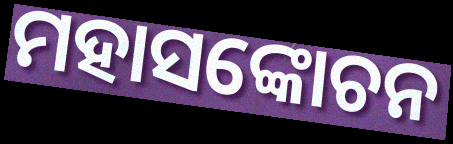
ମହାସଙ୍କୋଚନ